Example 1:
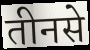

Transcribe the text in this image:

तीनसे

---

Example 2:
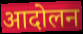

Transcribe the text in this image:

आदोलन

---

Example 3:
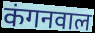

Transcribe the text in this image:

कंगनवाल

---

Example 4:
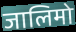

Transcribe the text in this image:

जालिमो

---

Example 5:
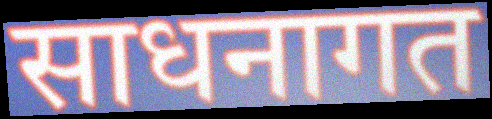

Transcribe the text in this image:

साधनागत